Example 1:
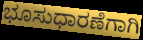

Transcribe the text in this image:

ಭೂಸುಧಾರಣೆಗಾಗಿ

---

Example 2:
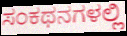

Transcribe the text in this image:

ಸಂಕಥನಗಳಲ್ಲಿ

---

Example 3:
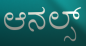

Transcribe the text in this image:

ಆನಲ್ಸ್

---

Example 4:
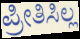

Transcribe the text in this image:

ಪ್ರೀತಿಸಿಲ್ಲ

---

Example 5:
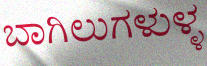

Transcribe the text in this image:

ಬಾಗಿಲುಗಳುಳ್ಳ